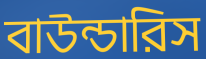
বাউন্ডারিস